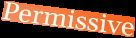
Permissive